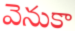
వెనుకా